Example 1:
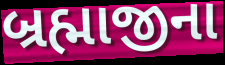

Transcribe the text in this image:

બ્રહ્માજીના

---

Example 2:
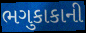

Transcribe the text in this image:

ભગુકાકાની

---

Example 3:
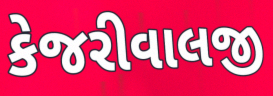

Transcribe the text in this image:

કેજરીવાલજી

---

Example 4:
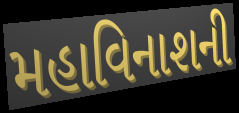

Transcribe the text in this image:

મહાવિનાશની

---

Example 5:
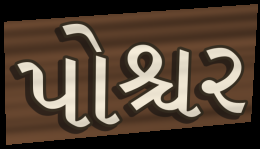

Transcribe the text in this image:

પોશ્ચર